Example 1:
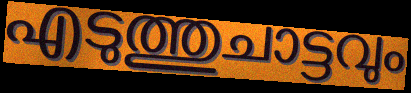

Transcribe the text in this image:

എടുത്തുചാട്ടവും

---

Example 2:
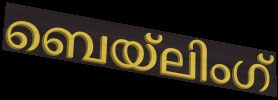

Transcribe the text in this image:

ബെയ്ലിംഗ്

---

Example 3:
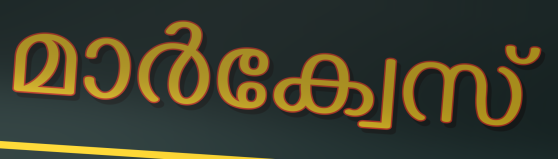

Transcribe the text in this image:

മാർക്വേസ്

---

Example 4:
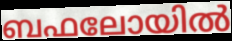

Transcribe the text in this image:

ബഫലോയിൽ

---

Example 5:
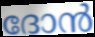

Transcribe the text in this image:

ദോൻ